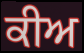
ਕੀਅ